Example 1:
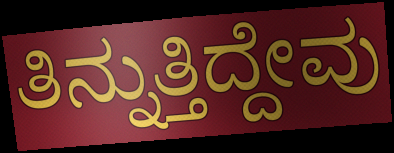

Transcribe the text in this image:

ತಿನ್ನುತ್ತಿದ್ದೇವು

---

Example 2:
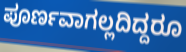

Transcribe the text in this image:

ಪೂರ್ಣವಾಗಲ್ಲದಿದ್ದರೂ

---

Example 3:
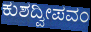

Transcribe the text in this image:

ಕುಶದ್ವೀಪವಂ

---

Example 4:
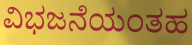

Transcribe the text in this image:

ವಿಭಜನೆಯಂತಹ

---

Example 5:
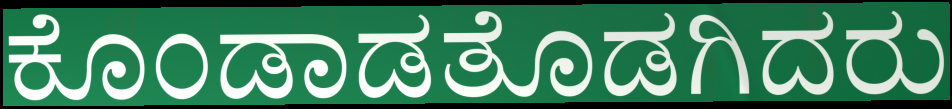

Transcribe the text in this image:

ಕೊಂಡಾಡತೊಡಗಿದರು